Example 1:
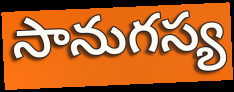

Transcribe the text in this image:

సానుగస్య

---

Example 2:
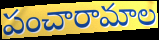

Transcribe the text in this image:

పంచారామాల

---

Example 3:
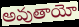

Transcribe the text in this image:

అవుతాయో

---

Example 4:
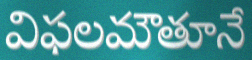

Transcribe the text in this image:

విఫలమౌతూనే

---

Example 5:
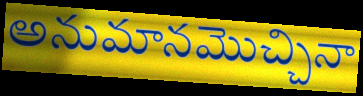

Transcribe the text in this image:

అనుమానమొచ్చినా